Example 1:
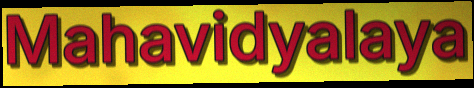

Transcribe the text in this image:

Mahavidyalaya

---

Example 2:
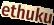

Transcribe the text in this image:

ethuku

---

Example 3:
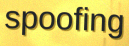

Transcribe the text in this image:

spoofing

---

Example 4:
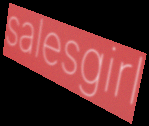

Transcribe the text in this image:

salesgirl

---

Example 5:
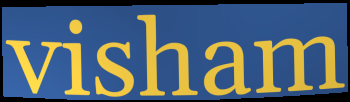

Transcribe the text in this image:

visham